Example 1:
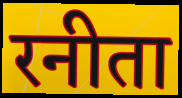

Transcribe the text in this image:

रनीता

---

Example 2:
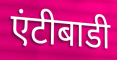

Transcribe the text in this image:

एंटीबाडी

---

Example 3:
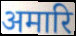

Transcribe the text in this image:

अमारि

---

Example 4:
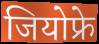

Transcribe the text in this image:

जियोफ्रे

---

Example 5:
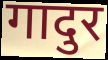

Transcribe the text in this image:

गादुर